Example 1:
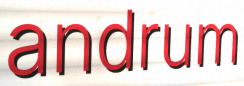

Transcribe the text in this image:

andrum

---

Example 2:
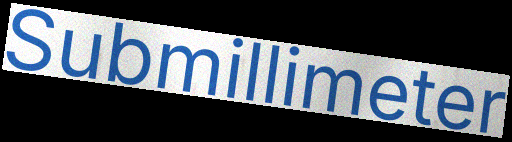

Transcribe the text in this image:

Submillimeter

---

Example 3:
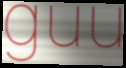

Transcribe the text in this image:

guu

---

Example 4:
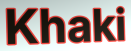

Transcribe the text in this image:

Khaki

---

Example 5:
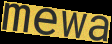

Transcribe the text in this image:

mewa